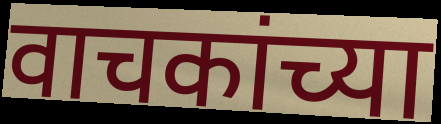
वाचकांच्या